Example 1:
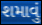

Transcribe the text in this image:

શમાવું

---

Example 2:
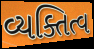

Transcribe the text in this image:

વ્યક્તિત્વ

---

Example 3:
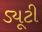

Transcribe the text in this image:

ડ્યૂટી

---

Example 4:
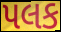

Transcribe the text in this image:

પલક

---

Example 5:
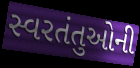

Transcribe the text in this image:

સ્વરતંતુઓની